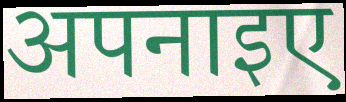
अपनाइए